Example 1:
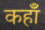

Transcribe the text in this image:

कहॉँ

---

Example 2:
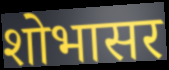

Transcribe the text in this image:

शोभासर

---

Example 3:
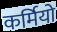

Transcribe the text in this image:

कर्मियो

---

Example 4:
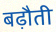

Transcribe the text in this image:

बढ़ौती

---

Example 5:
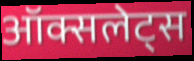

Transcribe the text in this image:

ऑक्सलेट्स